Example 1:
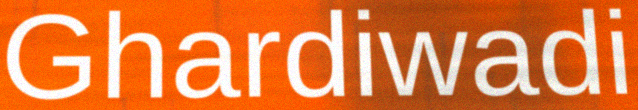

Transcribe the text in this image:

Ghardiwadi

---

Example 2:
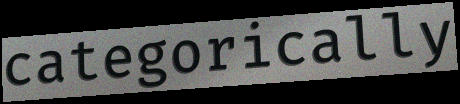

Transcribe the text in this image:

categorically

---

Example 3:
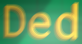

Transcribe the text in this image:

Ded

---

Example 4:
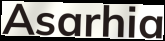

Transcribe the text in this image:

Asarhia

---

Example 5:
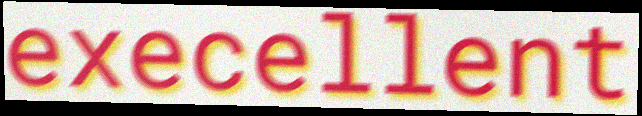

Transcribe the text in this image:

execellent